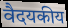
वैदयकीय